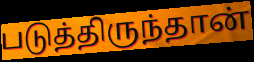
படுத்திருந்தான்